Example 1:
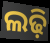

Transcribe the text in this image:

ଲଢ଼ି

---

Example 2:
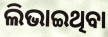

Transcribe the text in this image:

ଲିଭାଇଥିବା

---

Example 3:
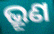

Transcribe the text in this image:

ଭ୍ରୂଣ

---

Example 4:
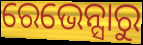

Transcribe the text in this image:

ରେଭେନ୍ସାରୁ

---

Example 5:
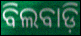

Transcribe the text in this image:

ବିଲବାଡ଼ି